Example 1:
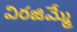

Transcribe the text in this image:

విరజిమ్మే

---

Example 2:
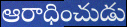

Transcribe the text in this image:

ఆరాధించుడు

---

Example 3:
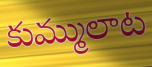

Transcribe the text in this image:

కుమ్ములాట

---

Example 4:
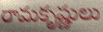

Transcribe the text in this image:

రామకృష్ణులు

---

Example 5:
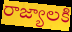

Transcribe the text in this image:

రాజ్యాలకి